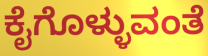
ಕೈಗೊಳ್ಳುವಂತೆ